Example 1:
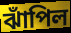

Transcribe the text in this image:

ঝাঁপিল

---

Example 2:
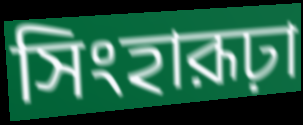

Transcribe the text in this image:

সিংহারূঢ়া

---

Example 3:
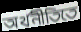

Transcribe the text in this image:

অর্থনীতিতে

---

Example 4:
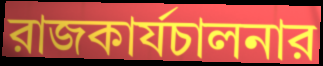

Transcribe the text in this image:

রাজকার্যচালনার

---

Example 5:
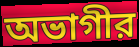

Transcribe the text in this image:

অভাগীর